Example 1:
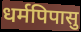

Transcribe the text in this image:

धर्मपिपासु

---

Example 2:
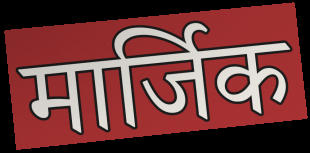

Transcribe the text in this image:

मार्जिक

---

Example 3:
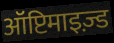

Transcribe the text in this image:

ऑप्टिमाइज़्ड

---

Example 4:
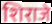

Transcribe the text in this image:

शिराजे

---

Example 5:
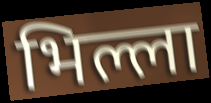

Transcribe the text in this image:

भिल्ला